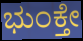
ಭುಂಕ್ತೇ